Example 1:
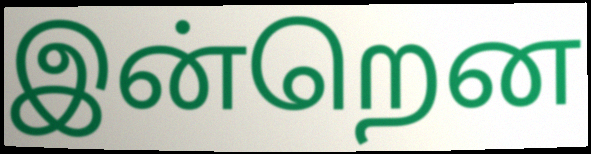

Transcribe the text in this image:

இன்றென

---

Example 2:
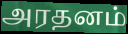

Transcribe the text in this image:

அரதனம்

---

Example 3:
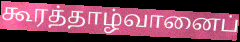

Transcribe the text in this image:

கூரத்தாழ்வானைப்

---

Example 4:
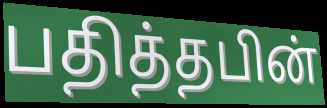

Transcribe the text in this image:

பதித்தபின்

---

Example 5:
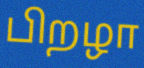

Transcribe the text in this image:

பிறழா